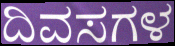
ದಿವಸಗಳ